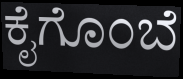
ಕೈಗೊಂಬೆ